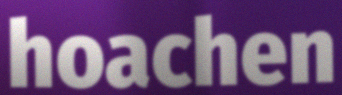
hoachen